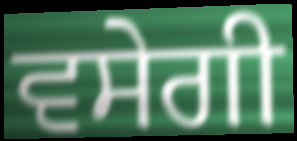
ਵਸੇਗੀ